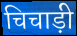
चिचाड़ी